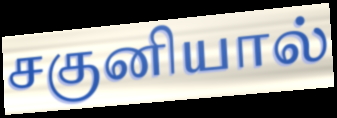
சகுனியால்